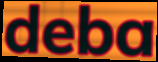
deba